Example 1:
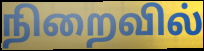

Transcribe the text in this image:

நிறைவில்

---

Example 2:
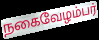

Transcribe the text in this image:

நகைவேழம்பர்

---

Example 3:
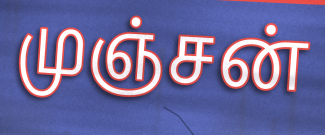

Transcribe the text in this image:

முஞ்சன்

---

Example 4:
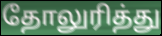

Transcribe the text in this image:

தோலுரித்து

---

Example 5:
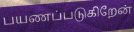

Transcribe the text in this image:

பயணப்படுகிறேன்